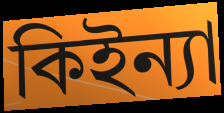
কিইন্যা